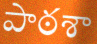
పాఠశా